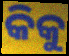
କିକୁ